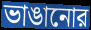
ভাঙানোর